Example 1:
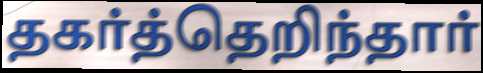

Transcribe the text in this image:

தகர்த்தெறிந்தார்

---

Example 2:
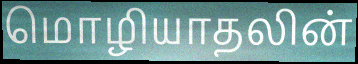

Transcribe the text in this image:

மொழியாதலின்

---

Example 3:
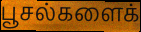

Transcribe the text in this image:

பூசல்களைக்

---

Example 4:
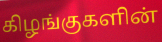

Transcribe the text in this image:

கிழங்குகளின்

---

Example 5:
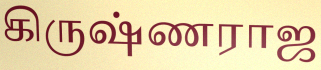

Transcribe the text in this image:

கிருஷ்ணராஜ